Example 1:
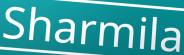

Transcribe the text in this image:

Sharmila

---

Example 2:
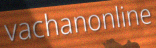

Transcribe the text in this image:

vachanonline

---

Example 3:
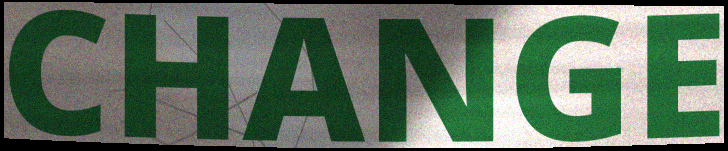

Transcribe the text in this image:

CHANGE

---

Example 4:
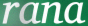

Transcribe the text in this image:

rana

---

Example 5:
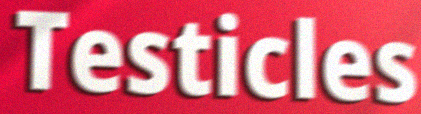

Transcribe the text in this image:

Testicles